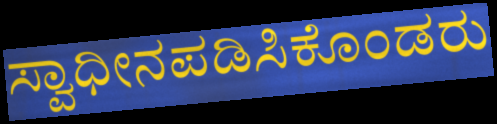
ಸ್ವಾಧೀನಪಡಿಸಿಕೊಂಡರು